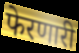
फेरणारी